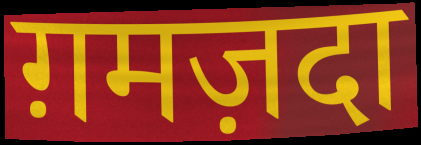
ग़मज़दा